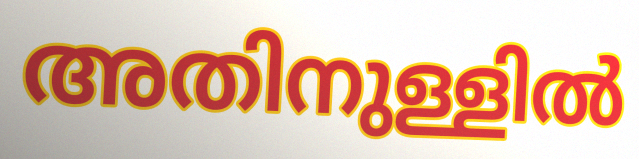
അതിനുള്ളിൽ